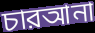
চারআনা